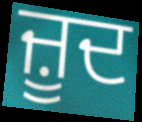
ਜ਼ੂਦ